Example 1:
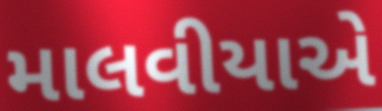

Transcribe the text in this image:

માલવીયાએ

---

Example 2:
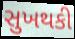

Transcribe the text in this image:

સુખથકી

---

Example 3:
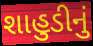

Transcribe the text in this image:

શાહુડીનું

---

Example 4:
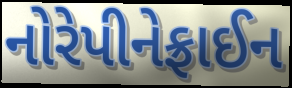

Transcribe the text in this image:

નોરેપીનેફ્રાઈન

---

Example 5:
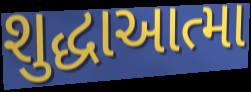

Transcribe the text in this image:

શુદ્ધાઆત્મા